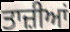
ਤਾਜ਼ੀਆਂ